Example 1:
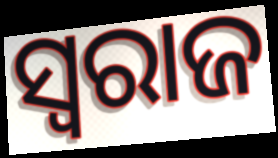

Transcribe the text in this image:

ସ୍ବରାଜ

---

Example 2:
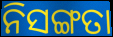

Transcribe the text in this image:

ନିସଙ୍ଗତା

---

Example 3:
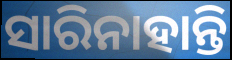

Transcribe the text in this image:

ସାରିନାହାନ୍ତି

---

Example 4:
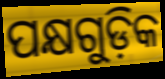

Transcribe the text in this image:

ପକ୍ଷଗୁଡ଼ିକ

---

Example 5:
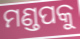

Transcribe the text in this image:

ମଣ୍ଡପକୁ